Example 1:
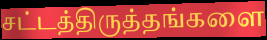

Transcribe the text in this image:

சட்டத்திருத்தங்களை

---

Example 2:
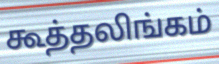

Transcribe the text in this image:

கூத்தலிங்கம்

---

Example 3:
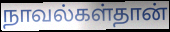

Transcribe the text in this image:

நாவல்கள்தான்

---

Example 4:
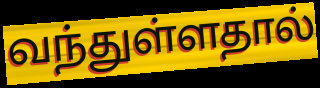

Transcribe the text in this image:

வந்துள்ளதால்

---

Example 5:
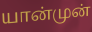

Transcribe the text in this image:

யான்முன்